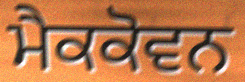
ਮੈਕਕੋਵਨ